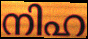
നിഹ